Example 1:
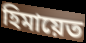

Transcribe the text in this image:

হিমায়েত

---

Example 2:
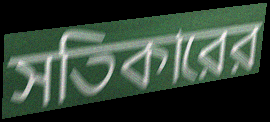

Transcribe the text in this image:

সতিকারের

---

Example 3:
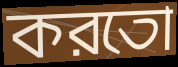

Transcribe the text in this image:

করতো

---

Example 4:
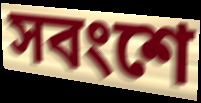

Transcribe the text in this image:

সবংশে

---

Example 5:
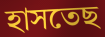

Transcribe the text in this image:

হাসতেছ